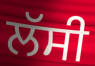
ਲੱਸੀ